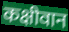
कक्षीवान